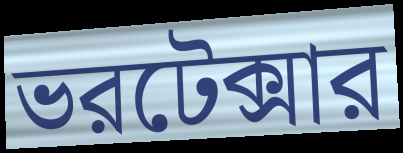
ভরটেক্সার